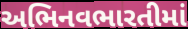
અભિનવભારતીમાં